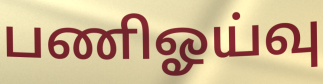
பணிஓய்வு